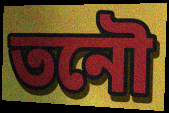
তনৌ